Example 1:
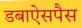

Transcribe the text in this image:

डबाऐसपैस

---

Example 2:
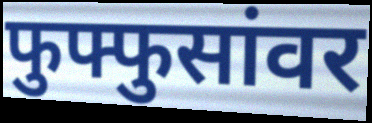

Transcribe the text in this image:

फुफ्फुसांवर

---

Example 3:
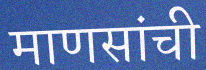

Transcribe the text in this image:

माणसांची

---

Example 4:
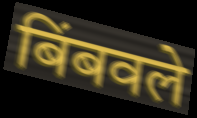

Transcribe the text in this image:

बिंबवले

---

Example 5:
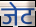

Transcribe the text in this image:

जेट